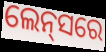
ଲେନ୍‌ସରେ